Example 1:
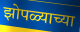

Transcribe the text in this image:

झोपळ्याच्या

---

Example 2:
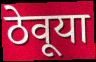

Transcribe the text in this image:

ठेवूया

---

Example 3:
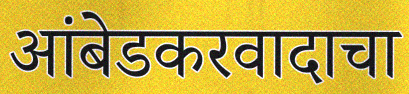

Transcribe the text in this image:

आंबेडकरवादाचा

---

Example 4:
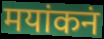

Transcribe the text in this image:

मयांकनं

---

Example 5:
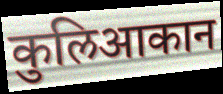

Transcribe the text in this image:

कुलिआकान